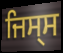
ਜਿਸ੍ਸ